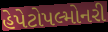
હેપેટોપલ્મોનરી